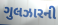
ગુલઝારની